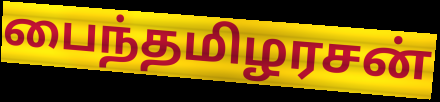
பைந்தமிழரசன்